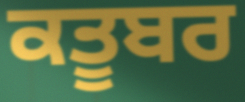
ਕਤੂਬਰ